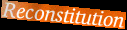
Reconstitution